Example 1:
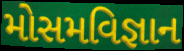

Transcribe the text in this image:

મોસમવિજ્ઞાન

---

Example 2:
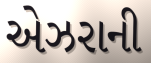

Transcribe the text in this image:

એઝરાની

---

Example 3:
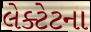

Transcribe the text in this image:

લેક્ટેટના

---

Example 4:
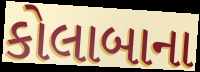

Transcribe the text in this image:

કોલાબાના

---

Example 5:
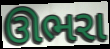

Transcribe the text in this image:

ઊભરા